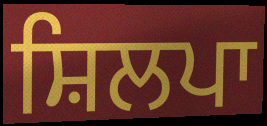
ਸ਼ਿਲਪਾ